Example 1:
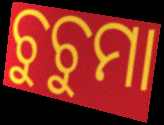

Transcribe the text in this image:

ଚୁଚୁମା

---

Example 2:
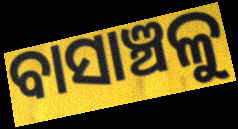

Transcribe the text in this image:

ବାସାଞ୍ଚଳୁ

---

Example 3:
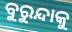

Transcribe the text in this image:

ବୁରୁନ୍ଦାକୁ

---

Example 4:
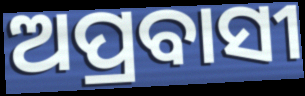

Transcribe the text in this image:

ଅପ୍ରବାସୀ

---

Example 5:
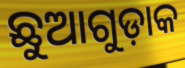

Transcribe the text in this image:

ଛୁଆଗୁଡ଼ାକ